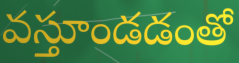
వస్తూండడంతో